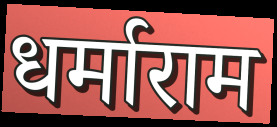
धर्माराम